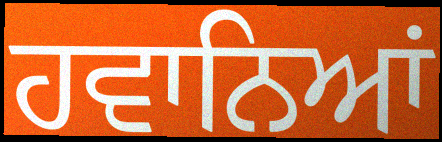
ਹਵਾਨਿਆਂ